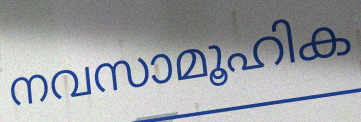
നവസാമൂഹിക